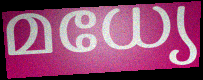
മധ്യേ